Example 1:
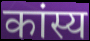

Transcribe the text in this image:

कांस्य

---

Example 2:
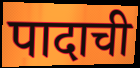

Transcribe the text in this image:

पादाची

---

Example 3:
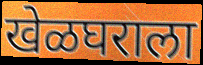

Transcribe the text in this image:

खेळघराला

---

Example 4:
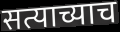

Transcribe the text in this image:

सत्याच्याच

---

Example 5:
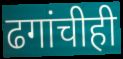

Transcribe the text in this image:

ढगांचीही